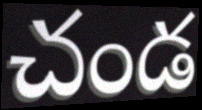
చండ